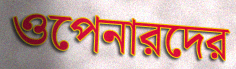
ওপেনারদের